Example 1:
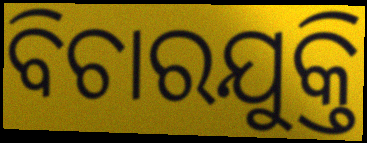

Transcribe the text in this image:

ବିଚାରଯୁକ୍ତି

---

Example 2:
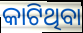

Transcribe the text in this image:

କାଟିଥିବା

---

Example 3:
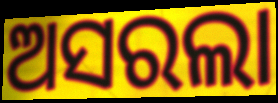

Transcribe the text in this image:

ଅସରଲା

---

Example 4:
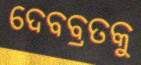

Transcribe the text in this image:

ଦେବବ୍ରତକୁ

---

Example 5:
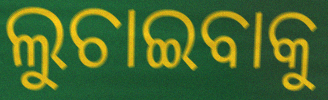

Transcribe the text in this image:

ଲୁଚାଇବାକୁ